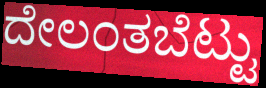
ದೇಲಂತಬೆಟ್ಟು